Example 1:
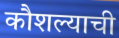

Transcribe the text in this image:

कौशल्याची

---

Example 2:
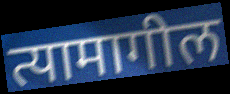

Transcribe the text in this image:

त्यामागील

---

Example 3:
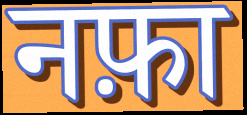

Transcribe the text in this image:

नफ़ा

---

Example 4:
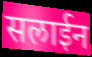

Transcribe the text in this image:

सलाईन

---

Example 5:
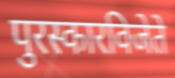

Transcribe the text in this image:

पुरस्कारविजेते